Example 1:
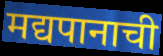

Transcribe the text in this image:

मद्यपानाची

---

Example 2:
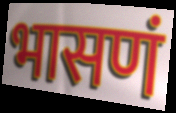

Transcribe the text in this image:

भासणं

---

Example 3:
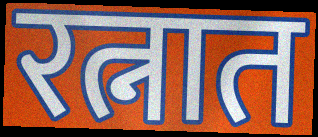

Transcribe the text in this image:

रत्नात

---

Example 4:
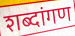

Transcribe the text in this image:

शब्दांगण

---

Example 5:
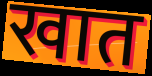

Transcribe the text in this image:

खात